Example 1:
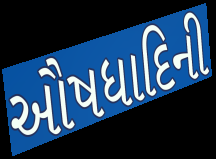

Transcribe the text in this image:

ઔષધાદિની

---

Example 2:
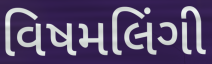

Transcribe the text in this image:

વિષમલિંગી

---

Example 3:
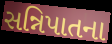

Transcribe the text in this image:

સન્નિપાતના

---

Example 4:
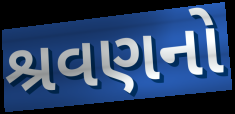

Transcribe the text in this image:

શ્રવણનો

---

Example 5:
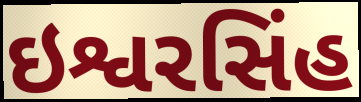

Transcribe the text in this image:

ઇશ્વરસિંહ